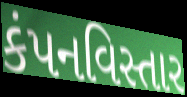
કંપનવિસ્તાર